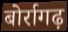
बोर्रागढ़